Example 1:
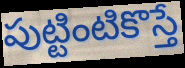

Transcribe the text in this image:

పుట్టింటికొస్తే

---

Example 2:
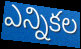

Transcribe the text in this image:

ఎన్నికల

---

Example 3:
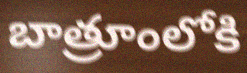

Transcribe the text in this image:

బాత్రూంలోకి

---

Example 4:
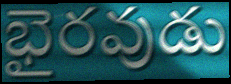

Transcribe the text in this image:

భైరవుడు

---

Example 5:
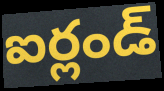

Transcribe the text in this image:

ఐర్లండ్